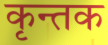
कृन्तक